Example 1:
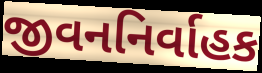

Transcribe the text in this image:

જીવનનિર્વાહક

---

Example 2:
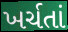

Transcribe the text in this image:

ખર્ચતાં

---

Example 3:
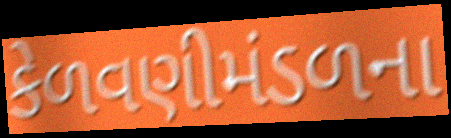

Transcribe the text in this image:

કેળવણીમંડળના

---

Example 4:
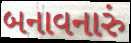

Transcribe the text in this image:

બનાવનારું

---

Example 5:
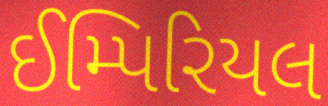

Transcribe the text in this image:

ઈમ્પિરિયલ